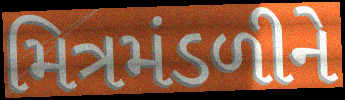
મિત્રમંડળીને